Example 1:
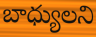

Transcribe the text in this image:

బాధ్యులని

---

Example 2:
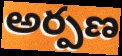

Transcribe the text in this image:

అర్పణ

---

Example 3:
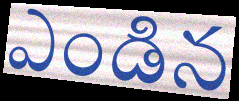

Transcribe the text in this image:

ఎండిన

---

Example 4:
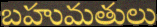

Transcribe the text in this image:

బహుమతులు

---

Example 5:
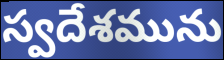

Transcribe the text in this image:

స్వదేశమును